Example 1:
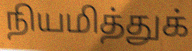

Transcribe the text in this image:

நியமித்துக்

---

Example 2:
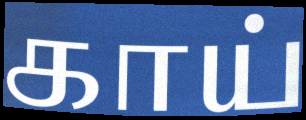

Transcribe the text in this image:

காய்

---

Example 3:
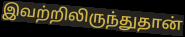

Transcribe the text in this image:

இவற்றிலிருந்துதான்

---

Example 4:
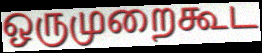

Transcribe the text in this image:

ஒருமுறைகூட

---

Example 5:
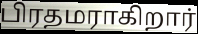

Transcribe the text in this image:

பிரதமராகிறார்